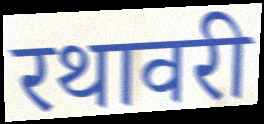
रथावरी